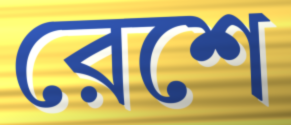
রেশে